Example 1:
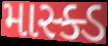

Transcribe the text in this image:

માસ્ક્ડ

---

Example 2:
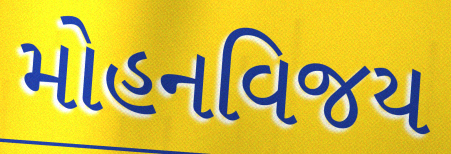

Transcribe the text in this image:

મોહનવિજય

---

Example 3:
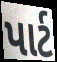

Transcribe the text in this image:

પાર્ટ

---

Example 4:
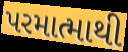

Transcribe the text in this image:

પરમાત્માથી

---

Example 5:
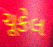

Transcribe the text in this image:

ચૂકેલ